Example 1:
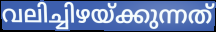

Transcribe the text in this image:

വലിച്ചിഴയ്ക്കുന്നത്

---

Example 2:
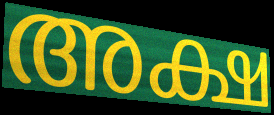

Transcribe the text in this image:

അക്ഷ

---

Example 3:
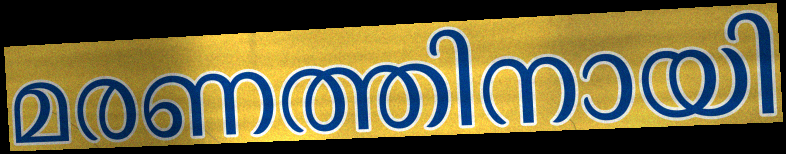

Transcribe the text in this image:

മരണത്തിനായി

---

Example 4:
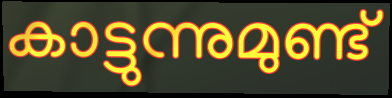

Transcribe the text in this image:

കാട്ടുന്നുമുണ്ട്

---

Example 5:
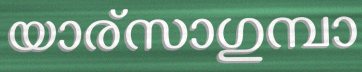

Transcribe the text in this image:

യാര്സാഗുമ്പാ